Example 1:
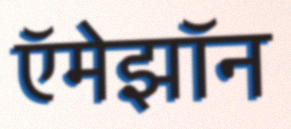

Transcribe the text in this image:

ऍमेझॉन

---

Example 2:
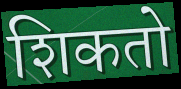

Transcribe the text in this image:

शिकतो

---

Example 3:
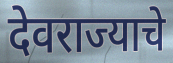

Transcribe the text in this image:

देवराज्याचे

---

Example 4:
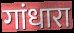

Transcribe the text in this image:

गांधारा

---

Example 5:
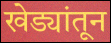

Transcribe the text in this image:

खेड्यांतून